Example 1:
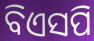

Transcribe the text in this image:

ବିଏସପି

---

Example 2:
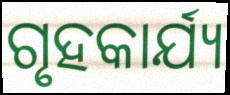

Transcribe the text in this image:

ଗୃହକାର୍ଯ୍ୟ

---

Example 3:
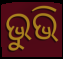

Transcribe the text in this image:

ଭୁଭି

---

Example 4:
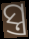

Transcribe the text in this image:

ସ୍ତ୍ର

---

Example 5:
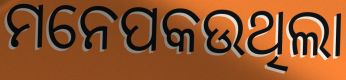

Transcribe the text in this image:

ମନେପକଉଥିଲା